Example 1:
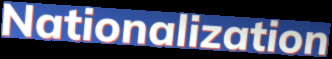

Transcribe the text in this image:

Nationalization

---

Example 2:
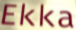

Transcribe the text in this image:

Ekka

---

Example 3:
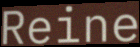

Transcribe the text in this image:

Reine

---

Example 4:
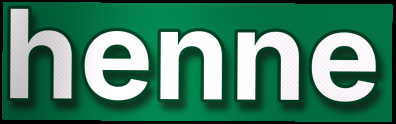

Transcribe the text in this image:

henne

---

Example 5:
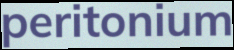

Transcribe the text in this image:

peritonium